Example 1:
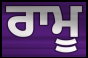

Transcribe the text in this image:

ਰਾਮੂ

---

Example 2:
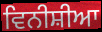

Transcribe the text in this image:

ਵਿਨੀਸ਼ੀਆ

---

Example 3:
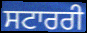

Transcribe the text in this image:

ਸਟਾਰਰੀ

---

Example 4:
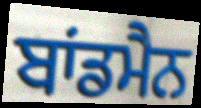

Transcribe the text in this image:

ਬਾਂਡਮੈਨ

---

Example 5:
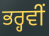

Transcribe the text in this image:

ਭਰ੍ਹਵੀਂ